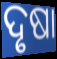
ଦୃଷା